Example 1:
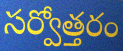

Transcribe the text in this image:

సర్వోత్తరం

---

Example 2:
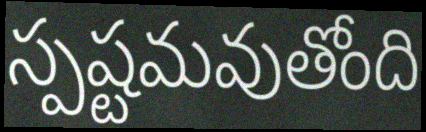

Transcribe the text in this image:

స్పష్టమవుతోంది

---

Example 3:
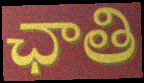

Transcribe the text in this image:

ఛాతి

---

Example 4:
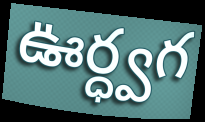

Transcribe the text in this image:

ఊర్ధ్వగ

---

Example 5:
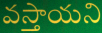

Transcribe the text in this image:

వస్తాయని